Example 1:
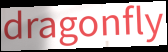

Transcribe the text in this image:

dragonfly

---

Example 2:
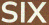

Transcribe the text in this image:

SIX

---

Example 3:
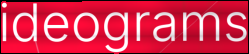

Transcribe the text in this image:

ideograms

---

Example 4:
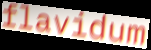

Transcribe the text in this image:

flavidum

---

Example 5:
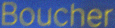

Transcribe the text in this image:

Boucher